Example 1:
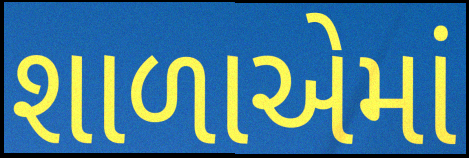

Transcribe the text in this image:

શાળાએમાં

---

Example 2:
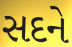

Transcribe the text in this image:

સદને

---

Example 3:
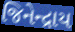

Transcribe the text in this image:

જિનેન્દ્રાય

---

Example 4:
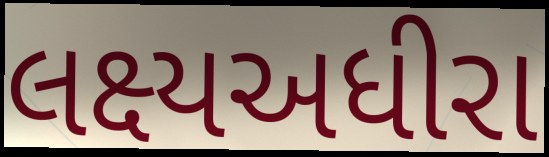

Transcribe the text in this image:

લક્ષ્યઅધીરા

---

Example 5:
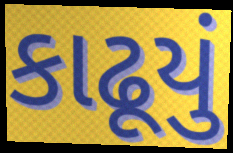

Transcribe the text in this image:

કાઢૂયું